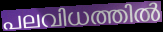
പലവിധത്തിൽ